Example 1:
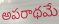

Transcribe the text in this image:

అపరాథమే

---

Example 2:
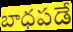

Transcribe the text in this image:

బాధపడే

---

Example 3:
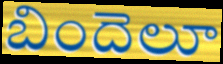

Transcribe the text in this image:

బిందెలూ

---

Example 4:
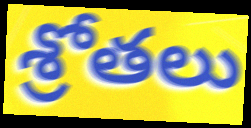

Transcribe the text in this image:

శ్రోతలు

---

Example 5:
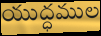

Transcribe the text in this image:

యుద్ధముల